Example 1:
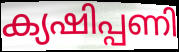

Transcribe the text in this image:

ക്യഷിപ്പണി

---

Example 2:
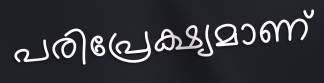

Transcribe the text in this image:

പരിപ്രേക്ഷ്യമാണ്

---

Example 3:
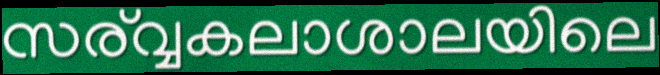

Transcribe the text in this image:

സര്വ്വകലാശാലയിലെ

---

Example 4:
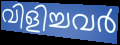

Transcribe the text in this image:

വിളിച്ചവർ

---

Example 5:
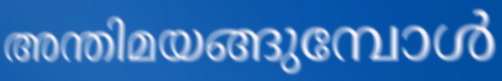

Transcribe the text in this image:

അന്തിമയങ്ങുമ്പോൾ